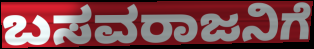
ಬಸವರಾಜನಿಗೆ